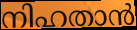
നിഹതാൻ